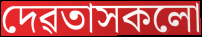
দেৱতাসকলো